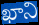
ఖాని